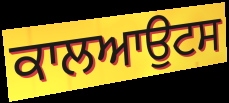
ਕਾਲਆਉਟਸ